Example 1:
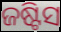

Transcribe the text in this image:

ଜଷ୍ଟିସ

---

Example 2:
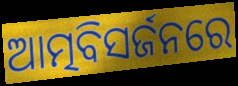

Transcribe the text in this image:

ଆତ୍ମବିସର୍ଜନରେ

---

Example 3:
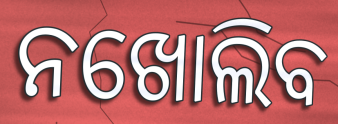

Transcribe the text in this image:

ନଖୋଲିବ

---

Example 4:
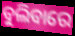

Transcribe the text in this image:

ବୁଲିବାରେ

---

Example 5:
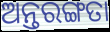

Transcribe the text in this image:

ଅନ୍ତରଙ୍ଗତା